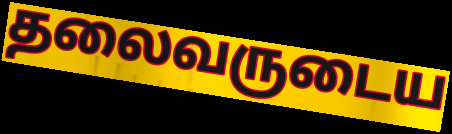
தலைவருடைய